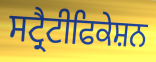
ਸਟ੍ਰੈਟੀਫਿਕੇਸ਼ਨ